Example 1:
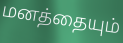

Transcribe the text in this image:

மனத்தையும்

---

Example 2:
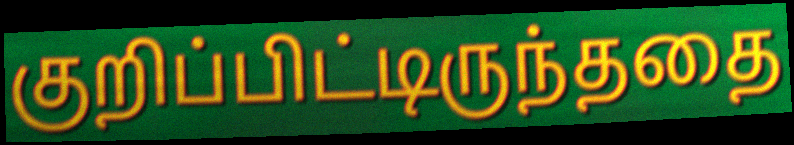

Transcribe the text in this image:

குறிப்பிட்டிருந்ததை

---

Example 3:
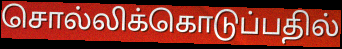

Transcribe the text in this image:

சொல்லிக்கொடுப்பதில்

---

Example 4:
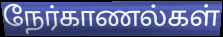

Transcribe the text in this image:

நேர்காணல்கள்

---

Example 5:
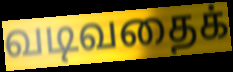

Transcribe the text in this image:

வடிவதைக்